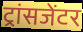
ट्रांसजेंटर